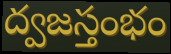
ద్వజస్తంభం